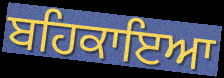
ਬਹਿਕਾਇਆ